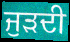
ਜੁੜਦੀ